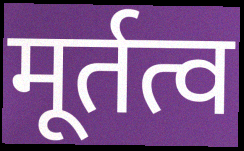
मूर्तत्व